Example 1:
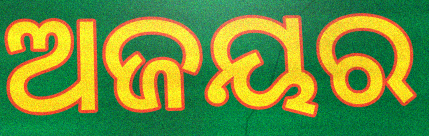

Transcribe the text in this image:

ଅଜୟର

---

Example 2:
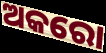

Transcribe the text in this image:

ଅକରୋ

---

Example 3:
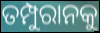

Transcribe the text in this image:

ତମ୍ପୁରାନକୁ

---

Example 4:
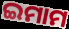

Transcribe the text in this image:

ଇମାମ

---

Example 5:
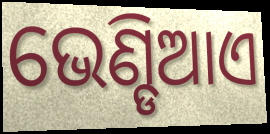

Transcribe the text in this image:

ଭେଣ୍ଡିଆଏ